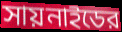
সায়নাইডের